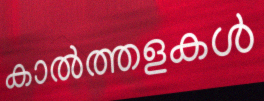
കാൽത്തളകൾ